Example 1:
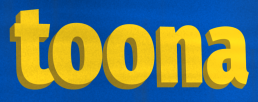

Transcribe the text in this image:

toona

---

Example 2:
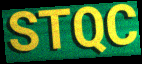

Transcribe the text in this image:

STQC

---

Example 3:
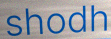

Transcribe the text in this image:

shodh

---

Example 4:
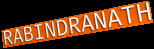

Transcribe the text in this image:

RABINDRANATH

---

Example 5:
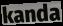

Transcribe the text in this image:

kanda